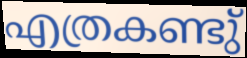
എത്രകണ്ടു്